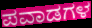
ಪವಾಡಗಳ